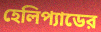
হেলিপ্যাডের